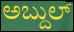
ಅಬ್ದುಲ್